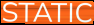
STATIC